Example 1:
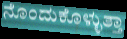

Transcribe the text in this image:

ನೊಂದುಕೊಳ್ಳುತ್ತಾ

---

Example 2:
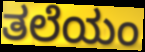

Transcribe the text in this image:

ತಲೆಯಂ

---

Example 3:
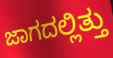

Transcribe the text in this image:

ಜಾಗದಲ್ಲಿತ್ತು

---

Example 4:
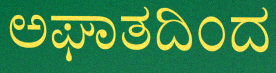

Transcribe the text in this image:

ಅಘಾತದಿಂದ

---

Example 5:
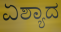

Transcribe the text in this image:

ಏಶ್ಯಾದ